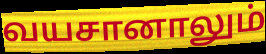
வயசானாலும்